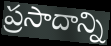
ప్రసాదాన్ని